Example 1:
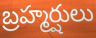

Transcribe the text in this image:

బ్రహ్మర్షులు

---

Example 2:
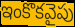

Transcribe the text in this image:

ఇంకొకవైపు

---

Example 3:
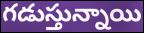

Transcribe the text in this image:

గడుస్తున్నాయి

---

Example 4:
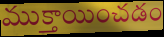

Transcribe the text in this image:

ముక్తాయించడం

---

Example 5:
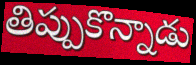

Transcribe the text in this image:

తిప్పుకొన్నాడు